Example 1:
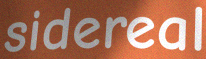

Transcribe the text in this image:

sidereal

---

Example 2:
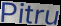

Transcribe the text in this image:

Pitru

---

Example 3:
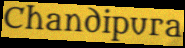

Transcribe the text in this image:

Chandipura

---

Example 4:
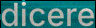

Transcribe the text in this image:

dicere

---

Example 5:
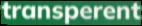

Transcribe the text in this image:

transperent